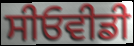
ਸੀਓਵੀਡੀ